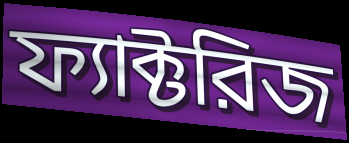
ফ্যাক্টরিজ